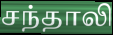
சந்தாலி